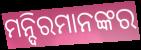
ମନ୍ଦିରମାନଙ୍କର